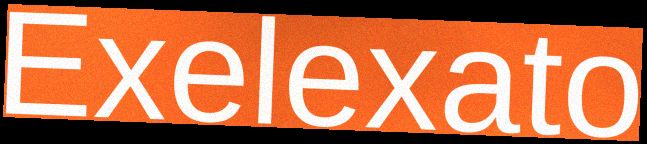
Exelexato